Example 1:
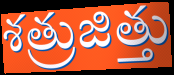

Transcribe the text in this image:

శత్రుజిత్తు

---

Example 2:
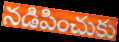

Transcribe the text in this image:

నడిపించుకు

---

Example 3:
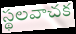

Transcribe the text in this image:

స్థలవాచక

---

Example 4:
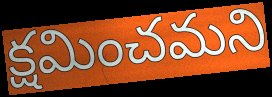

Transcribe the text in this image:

క్షమించమని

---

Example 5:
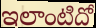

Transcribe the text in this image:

ఇలాంటిదో